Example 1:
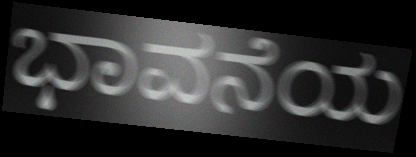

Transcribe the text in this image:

ಭಾವನೆಯ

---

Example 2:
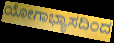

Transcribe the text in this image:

ಯೋಗಾಭ್ಯಾಸದಿಂದ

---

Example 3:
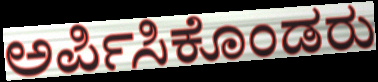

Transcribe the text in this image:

ಅರ್ಪಿಸಿಕೊಂಡರು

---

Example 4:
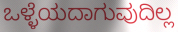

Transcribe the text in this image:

ಒಳ್ಳೆಯದಾಗುವುದಿಲ್ಲ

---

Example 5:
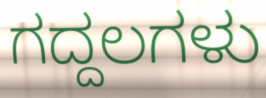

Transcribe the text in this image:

ಗದ್ದಲಗಳು